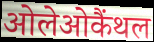
ओलेओकैंथल